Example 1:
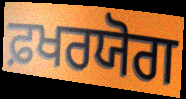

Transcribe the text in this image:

ਫ਼ਖਰਯੋਗ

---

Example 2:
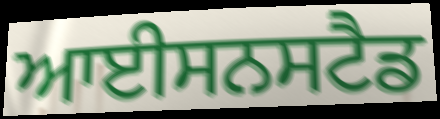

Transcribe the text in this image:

ਆਈਸਨਸਟੈਡ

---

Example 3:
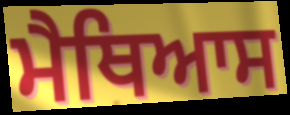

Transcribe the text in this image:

ਮੈਥਿਆਸ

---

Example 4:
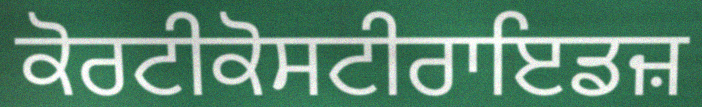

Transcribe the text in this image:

ਕੋਰਟੀਕੋਸਟੀਰਾਇਡਜ਼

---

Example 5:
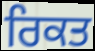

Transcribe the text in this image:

ਰਿਕਤ